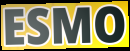
ESMO